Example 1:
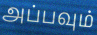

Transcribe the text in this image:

அப்பவும்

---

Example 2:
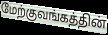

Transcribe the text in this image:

மேற்குவங்கத்தின்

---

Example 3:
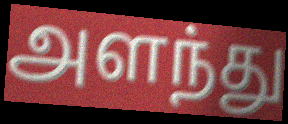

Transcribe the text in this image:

அளந்து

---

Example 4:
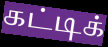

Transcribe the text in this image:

கட்டிக்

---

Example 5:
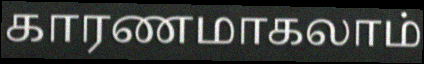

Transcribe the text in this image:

காரணமாகலாம்